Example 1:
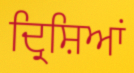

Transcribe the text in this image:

ਦ੍ਰਿਸ਼ਿਆਂ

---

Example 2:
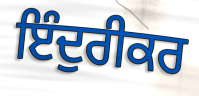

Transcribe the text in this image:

ਇੰਦੁਰੀਕਰ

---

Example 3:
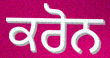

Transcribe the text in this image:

ਕਰੋਨ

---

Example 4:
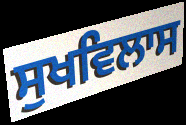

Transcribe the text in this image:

ਸੁਖਵਿਲਾਸ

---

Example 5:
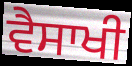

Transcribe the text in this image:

ਵੈਸਾਖੀ